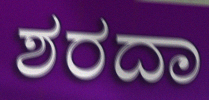
ಶರದಾ